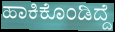
ಹಾಕಿಕೊಂಡಿದ್ದೆ